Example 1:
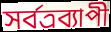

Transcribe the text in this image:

সর্বত্রব্যাপী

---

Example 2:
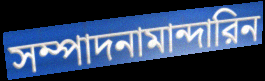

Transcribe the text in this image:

সম্পাদনামান্দারিন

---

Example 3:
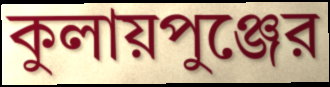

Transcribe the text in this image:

কুলায়পুঞ্জের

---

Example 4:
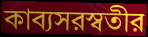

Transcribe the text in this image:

কাব্যসরস্বতীর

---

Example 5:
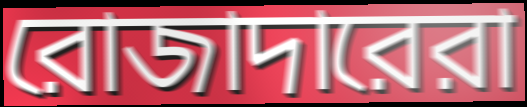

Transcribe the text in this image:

রোজাদারেরা